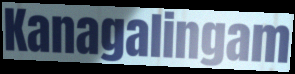
Kanagalingam